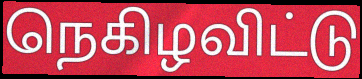
நெகிழவிட்டு